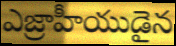
ఎజ్రాహీయుడైన